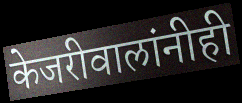
केजरीवालांनीही